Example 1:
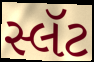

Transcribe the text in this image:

સ્લૅટ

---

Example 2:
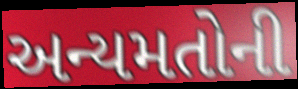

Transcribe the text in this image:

અન્યમતોની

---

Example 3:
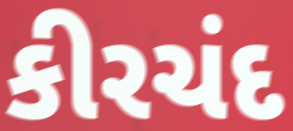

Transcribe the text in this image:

કીરચંદ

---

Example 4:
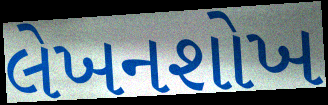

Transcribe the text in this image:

લેખનશોખ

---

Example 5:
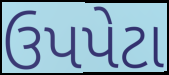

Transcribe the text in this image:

ઉપપેટા